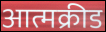
आत्मक्रीड